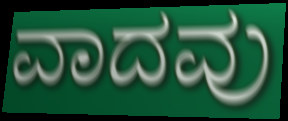
ವಾದವು